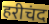
हरीचंद